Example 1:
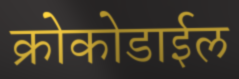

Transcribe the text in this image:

क्रोकोडाईल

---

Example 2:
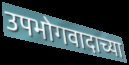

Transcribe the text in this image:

उपभोगवादाच्या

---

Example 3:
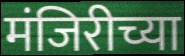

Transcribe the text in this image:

मंजिरीच्या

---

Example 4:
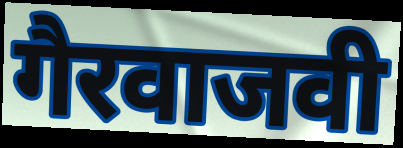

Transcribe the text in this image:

गैरवाजवी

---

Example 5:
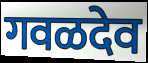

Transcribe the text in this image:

गवळदेव